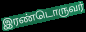
இரண்டொருவர்